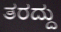
ತರದ್ದು